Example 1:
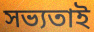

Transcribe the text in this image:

সভ্যতাই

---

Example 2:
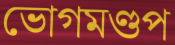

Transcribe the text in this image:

ভোগমণ্ডপ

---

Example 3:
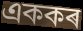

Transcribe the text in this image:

এককৰ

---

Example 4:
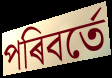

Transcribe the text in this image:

পৰিবৰ্তে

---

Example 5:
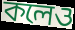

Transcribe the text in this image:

কলেও